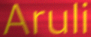
Aruli